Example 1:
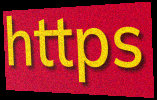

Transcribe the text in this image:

https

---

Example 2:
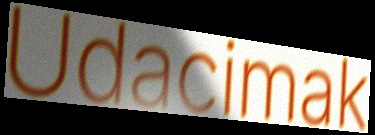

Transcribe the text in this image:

Udacimak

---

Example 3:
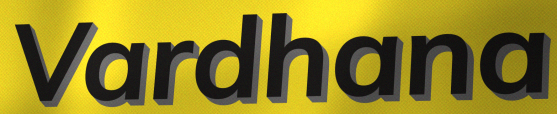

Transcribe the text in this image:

Vardhana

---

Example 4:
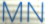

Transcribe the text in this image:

MN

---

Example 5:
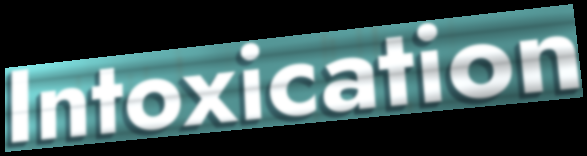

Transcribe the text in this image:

Intoxication